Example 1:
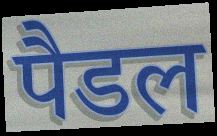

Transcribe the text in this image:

पैडल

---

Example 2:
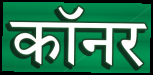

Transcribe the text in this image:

कॉनर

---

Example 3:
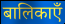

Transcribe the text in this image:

बालिकाएँ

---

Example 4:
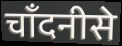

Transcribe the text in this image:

चाँदनीसे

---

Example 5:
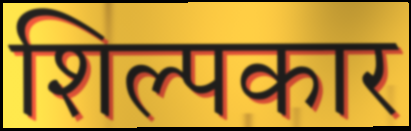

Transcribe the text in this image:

शिल्पकार